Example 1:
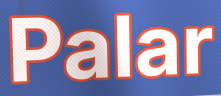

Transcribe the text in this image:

Palar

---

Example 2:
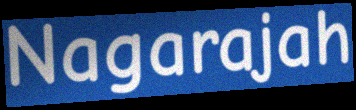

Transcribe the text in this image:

Nagarajah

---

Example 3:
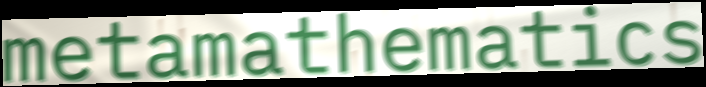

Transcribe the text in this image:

metamathematics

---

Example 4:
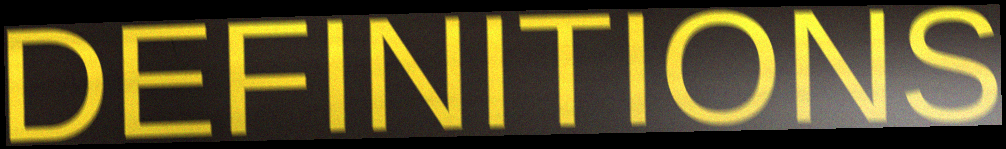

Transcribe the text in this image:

DEFINITIONS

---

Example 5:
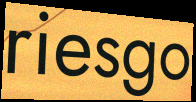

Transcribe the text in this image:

riesgo